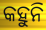
କହୁନି